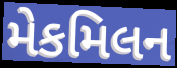
મેકમિલન